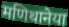
मणिथानेया